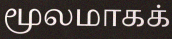
மூலமாகக்